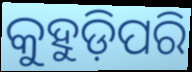
କୁହୁଡ଼ିପରି